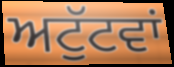
ਅਟੁੱਟਵਾਂ